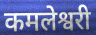
कमलेश्वरी